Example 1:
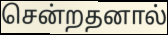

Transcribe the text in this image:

சென்றதனால்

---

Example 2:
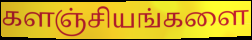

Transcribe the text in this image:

களஞ்சியங்களை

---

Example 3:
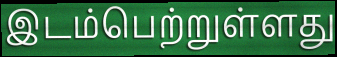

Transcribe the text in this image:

இடம்பெற்றுள்ளது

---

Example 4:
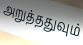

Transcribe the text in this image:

அறுத்ததுவும்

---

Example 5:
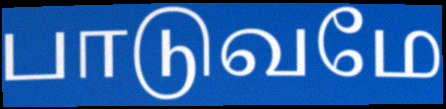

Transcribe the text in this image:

பாடுவமே